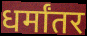
धर्मांतर